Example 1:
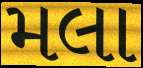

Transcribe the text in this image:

મલા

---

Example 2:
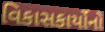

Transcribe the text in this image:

વિકાસકાર્યોનો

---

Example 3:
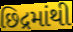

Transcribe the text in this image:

છિદ્રમાંથી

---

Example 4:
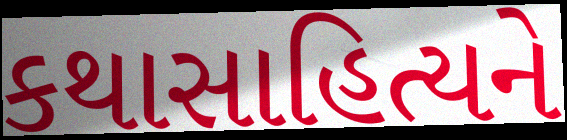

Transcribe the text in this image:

કથાસાહિત્યને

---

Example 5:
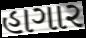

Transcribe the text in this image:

હાગાર